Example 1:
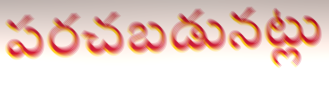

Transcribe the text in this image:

పరచబడునట్లు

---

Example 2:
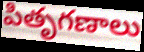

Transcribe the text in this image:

పితృగణాలు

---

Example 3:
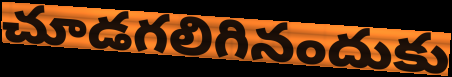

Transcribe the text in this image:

చూడగలిగినందుకు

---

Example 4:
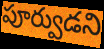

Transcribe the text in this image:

పూర్వుడని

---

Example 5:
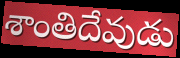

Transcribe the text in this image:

శాంతిదేవుడు